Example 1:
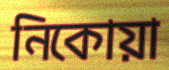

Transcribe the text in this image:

নিকোয়া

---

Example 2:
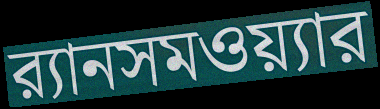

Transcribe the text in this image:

র‍্যানসমওয়্যার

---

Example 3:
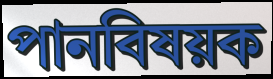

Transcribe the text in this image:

পানবিষয়ক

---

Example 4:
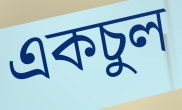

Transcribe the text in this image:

একচুল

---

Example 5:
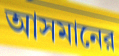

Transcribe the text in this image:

আসমানের